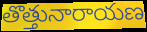
తొత్తునారాయణ